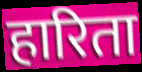
हारिता